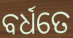
ବର୍ଧତେ